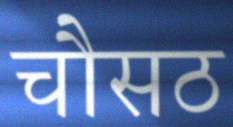
चौसठ